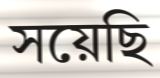
সয়েছি